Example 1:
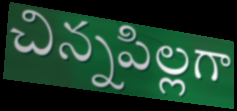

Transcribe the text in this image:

చిన్నపిల్లగా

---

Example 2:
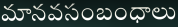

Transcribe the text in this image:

మానవసంబంధాలు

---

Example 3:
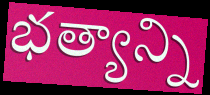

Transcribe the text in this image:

భత్యాన్ని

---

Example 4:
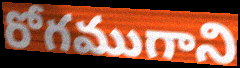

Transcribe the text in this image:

రోగముగాని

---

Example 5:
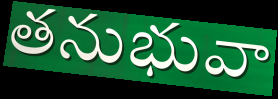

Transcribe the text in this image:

తనుభువా